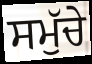
ਸਮੁੱਚੇ